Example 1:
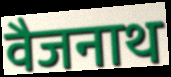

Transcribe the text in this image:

वैजनाथ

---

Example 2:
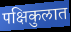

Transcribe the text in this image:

पक्षिकुलात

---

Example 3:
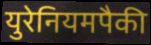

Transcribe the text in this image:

युरेनियमपैकी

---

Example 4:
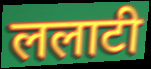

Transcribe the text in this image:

ललाटी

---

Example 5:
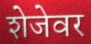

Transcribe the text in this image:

शेजेवर